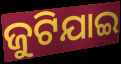
ଜୁଟିଯାଇ